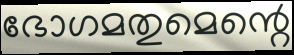
ഭോഗമതുമെന്റെ